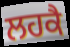
ਲਹਕੈ